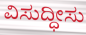
ವಿಸುದ್ಧೀಸು